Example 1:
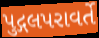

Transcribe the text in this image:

પુદ્ગલપરાવર્તે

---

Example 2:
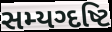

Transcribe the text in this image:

સમ્યગ્દષ્ટિ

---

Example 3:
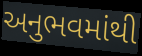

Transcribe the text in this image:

અનુભવમાંથી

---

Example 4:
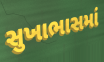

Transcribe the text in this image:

સુખાભાસમાં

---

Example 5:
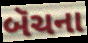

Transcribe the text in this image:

બૅચના